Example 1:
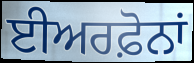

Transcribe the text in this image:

ਈਅਰਫ਼ੋਨਾਂ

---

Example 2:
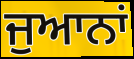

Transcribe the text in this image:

ਜੁਆਨਾਂ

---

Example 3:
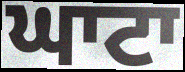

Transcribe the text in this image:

ਘਾਟਾ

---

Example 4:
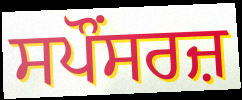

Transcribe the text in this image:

ਸਪੌਂਸਰਜ਼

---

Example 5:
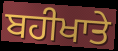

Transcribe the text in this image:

ਬਹੀਖਾਤੇ